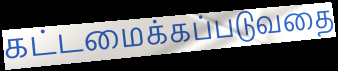
கட்டமைக்கப்படுவதை